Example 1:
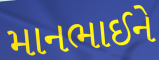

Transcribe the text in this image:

માનભાઈને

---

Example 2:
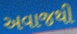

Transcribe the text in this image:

અવાજથી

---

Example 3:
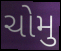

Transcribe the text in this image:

ચોમુ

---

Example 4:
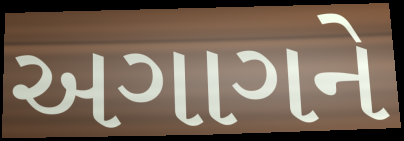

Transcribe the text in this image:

અગાગને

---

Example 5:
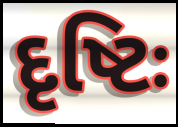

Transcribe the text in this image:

દૃષ્ટિઃ